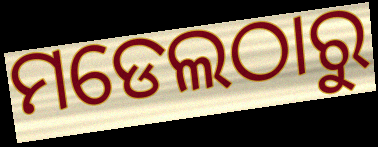
ମଡେଲଠାରୁ